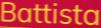
Battista